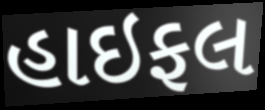
હાઇફલ